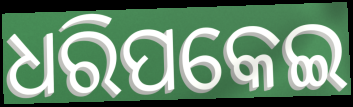
ଧରିପକେଇ